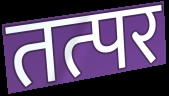
तत्‍पर